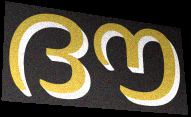
ദൗ